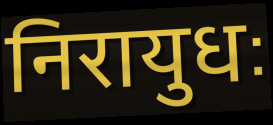
निरायुधः